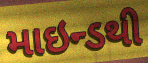
માઇન્ડથી